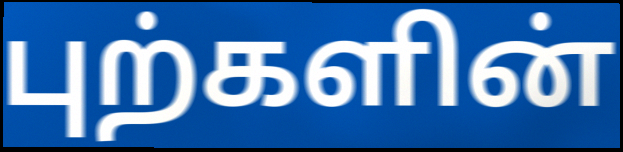
புற்களின்